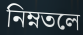
নিম্নতলে